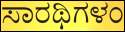
ಸಾರಥಿಗಳಂ